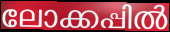
ലോക്കപ്പിൽ